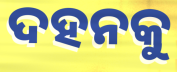
ଦହନକୁ